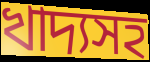
খাদ্যসহ